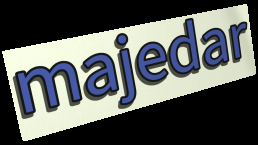
majedar